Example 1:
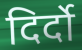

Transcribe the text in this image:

दिर्दो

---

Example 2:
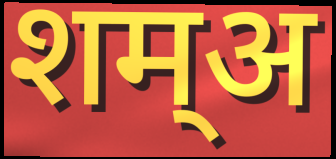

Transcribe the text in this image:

शम्अ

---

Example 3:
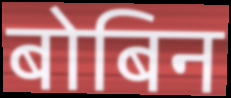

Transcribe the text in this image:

बोबिन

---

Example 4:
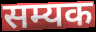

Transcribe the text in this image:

सम्यक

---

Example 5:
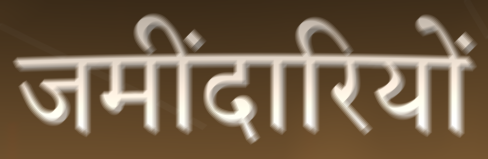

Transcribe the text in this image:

जमींदारियों